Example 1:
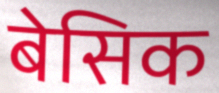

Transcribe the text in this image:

बेसिक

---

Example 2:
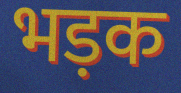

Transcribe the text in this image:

भड़क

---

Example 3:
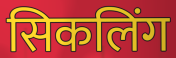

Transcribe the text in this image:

सिकलिंग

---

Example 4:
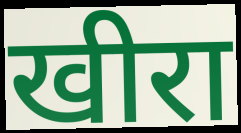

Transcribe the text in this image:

खीरा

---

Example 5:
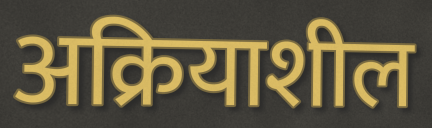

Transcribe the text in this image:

अक्रियाशील